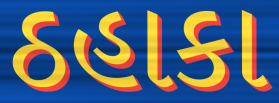
ઠહાકા